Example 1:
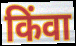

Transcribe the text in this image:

किंवा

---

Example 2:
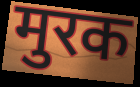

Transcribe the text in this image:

मुरक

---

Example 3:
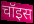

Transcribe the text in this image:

चॉइस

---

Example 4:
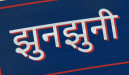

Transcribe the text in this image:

झुनझुनी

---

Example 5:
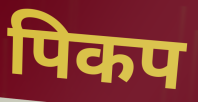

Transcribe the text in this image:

पिकप